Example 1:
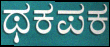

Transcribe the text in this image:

ಥಕಪಕ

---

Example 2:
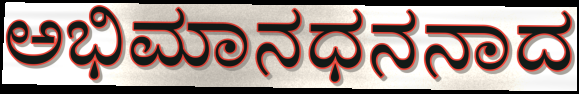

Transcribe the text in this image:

ಅಭಿಮಾನಧನನಾದ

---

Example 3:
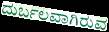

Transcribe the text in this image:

ದುರ್ಬಲವಾಗಿರುವ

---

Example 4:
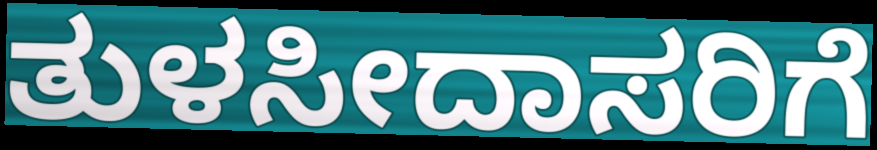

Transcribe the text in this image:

ತುಳಸೀದಾಸರಿಗೆ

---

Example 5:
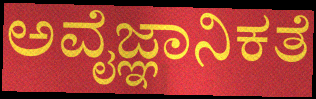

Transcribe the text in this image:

ಅವೈಜ್ಞಾನಿಕತೆ